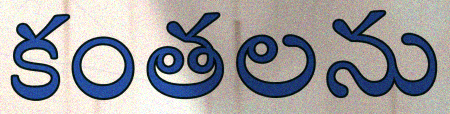
కంతలను